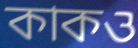
কাকও